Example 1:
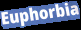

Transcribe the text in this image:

Euphorbia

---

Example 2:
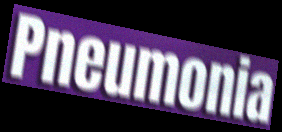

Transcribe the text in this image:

Pneumonia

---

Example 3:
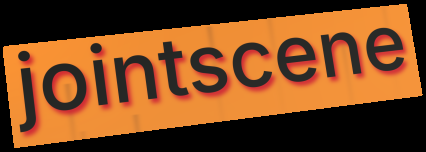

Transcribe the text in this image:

jointscene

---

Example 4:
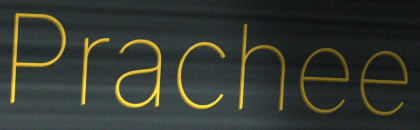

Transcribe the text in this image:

Prachee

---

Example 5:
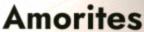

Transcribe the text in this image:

Amorites